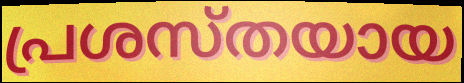
പ്രശസ്തയായ